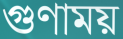
গুণাময়